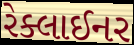
રેક્લાઈનર